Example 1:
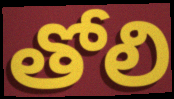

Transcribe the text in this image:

తోలి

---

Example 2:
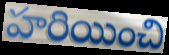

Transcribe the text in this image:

హరియించి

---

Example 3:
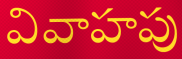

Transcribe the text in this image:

వివాహపు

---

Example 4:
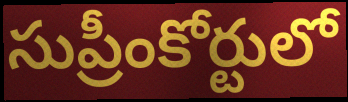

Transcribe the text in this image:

సుప్రీంకోర్టులో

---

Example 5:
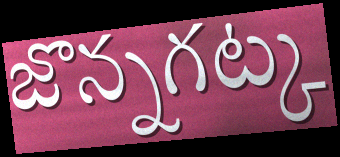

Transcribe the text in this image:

జొన్నగట్క